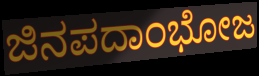
ಜಿನಪದಾಂಭೋಜ